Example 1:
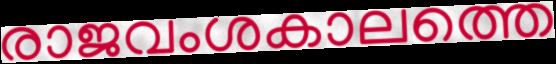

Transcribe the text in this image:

രാജവംശകാലത്തെ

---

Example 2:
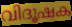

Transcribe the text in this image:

വിദൂഷക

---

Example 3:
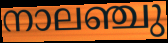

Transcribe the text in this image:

നാലഞ്ചു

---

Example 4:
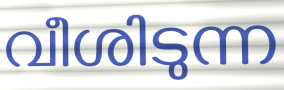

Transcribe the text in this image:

വീശിടുന്ന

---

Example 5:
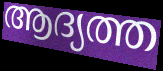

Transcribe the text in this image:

ആദ്യത്ത